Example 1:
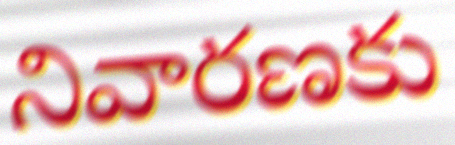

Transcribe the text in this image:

నివారణకు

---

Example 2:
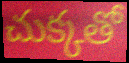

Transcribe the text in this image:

చుక్కతో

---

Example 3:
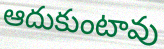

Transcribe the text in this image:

ఆదుకుంటావు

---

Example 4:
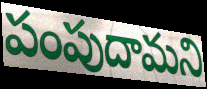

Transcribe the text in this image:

పంపుదామని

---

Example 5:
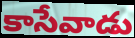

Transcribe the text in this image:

కాసేవాడు